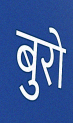
बुरो